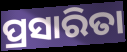
ପ୍ରସାରିତା